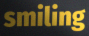
smiling